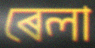
ৰেলা